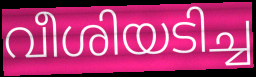
വീശിയടിച്ച